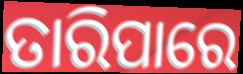
ତାରିପାରେ